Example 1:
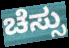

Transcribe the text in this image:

ಚೆಸ್ಸು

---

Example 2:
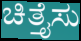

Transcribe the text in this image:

ಚಿತ್ತೈಸು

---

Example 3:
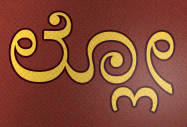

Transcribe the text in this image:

ಲ್ಲೋ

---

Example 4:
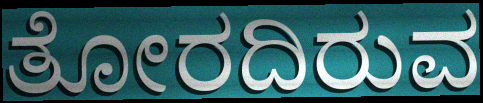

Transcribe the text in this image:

ತೋರದಿರುವ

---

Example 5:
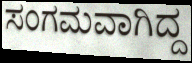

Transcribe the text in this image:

ಸಂಗಮವಾಗಿದ್ದ